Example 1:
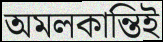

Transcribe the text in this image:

অমলকান্তিই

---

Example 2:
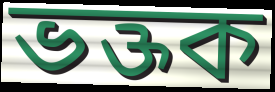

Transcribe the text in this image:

ভক্তক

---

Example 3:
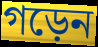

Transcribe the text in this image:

গড়েন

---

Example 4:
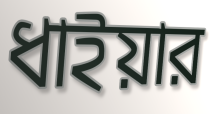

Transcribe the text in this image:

ধাইয়ার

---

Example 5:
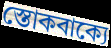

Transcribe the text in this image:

স্তোকবাক্যে